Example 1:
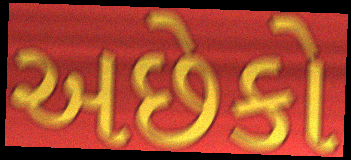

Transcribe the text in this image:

અછેકો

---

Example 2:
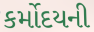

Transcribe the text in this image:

કર્મોદયની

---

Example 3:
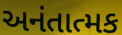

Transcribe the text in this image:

અનંતાત્મક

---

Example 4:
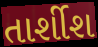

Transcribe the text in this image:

તાર્શીશ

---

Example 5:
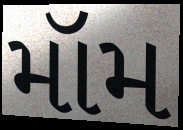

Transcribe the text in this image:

મૉમ